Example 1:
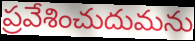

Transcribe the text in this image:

ప్రవేశించుదుమను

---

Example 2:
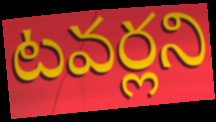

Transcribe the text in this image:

టవర్లని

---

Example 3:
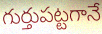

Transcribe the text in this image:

గుర్తుపట్టగానే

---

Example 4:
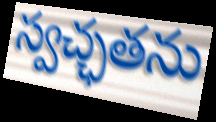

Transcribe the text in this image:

స్వచ్ఛతను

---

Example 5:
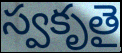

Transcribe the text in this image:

స్వకృతై